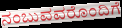
ನಂಬುವವರೊಂದಿಗೆ